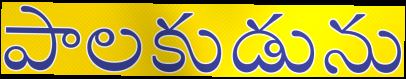
పాలకుడును